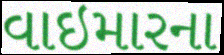
વાઇમારના